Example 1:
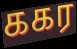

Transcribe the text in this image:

ககர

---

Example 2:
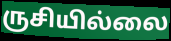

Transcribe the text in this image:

ருசியில்லை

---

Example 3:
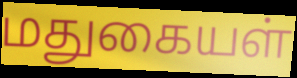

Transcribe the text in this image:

மதுகையள்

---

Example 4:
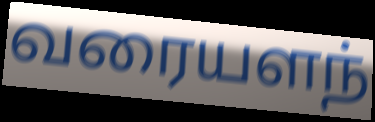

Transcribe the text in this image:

வரையளந்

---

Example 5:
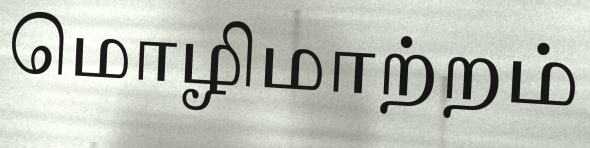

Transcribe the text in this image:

மொழிமாற்றம்